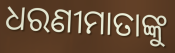
ଧରଣୀମାତାଙ୍କୁ